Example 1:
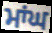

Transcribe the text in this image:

ਮਾਂਘ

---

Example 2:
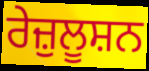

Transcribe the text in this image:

ਰੇਜ਼ੁਲੂਸ਼ਨ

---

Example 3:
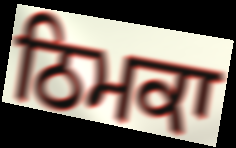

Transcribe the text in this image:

ਠਿਮਕਾ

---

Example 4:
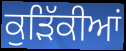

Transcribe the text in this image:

ਕੁੜਿੱਕੀਆਂ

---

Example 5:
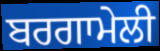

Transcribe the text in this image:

ਬਰਗਾਮੇਲੀ